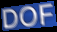
DOF